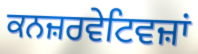
ਕਨਜ਼ਰਵੇਟਿਵਜ਼ਾਂ